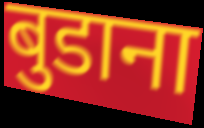
बुडाना